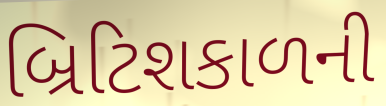
બ્રિટિશકાળની